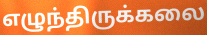
எழுந்திருக்கலை